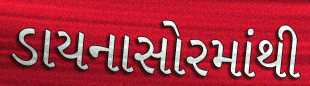
ડાયનાસોરમાંથી